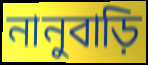
নানুবাড়ি